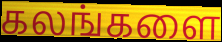
கலங்களை